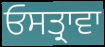
ਓਸਤ੍ਰਾਵਾ